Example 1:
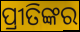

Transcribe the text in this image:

ପ୍ରୀତିଙ୍କର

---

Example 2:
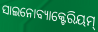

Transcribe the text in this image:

ସାଇନୋବ୍ୟାକ୍ଟେରିୟମ୍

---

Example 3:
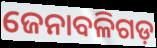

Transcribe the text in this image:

ଜେନାବଳିଗଡ଼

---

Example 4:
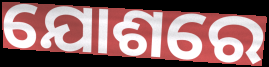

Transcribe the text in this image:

ଯୋଶରେ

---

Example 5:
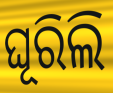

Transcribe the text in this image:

ଘୂରିଲି